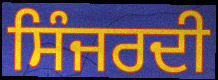
ਸਿੰਜਰਦੀ